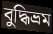
বুদ্ধিভ্রম